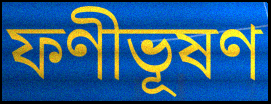
ফণীভূষণ